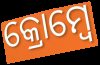
କ୍ରୋମ୍ବେ